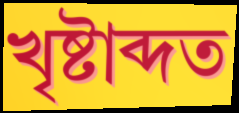
খৃষ্টাব্দত